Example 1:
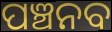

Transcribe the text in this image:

ପଞ୍ଚନବ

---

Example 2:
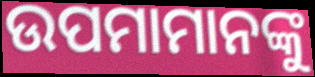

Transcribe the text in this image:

ଉପମାମାନଙ୍କୁ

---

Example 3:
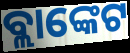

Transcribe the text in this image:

ବ୍ଲାଙ୍କେଟ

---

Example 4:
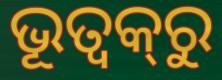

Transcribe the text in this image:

ଭୂତ୍ଵକ୍‌ରୁ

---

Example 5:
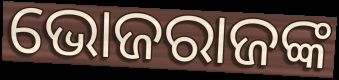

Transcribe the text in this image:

ଭୋଜରାଜଙ୍କ